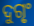
ଦୁଗୃଂ